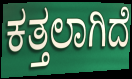
ಕತ್ತಲಾಗಿದೆ